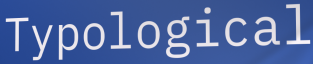
Typological